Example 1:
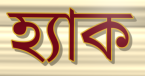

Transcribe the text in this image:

হ্যাক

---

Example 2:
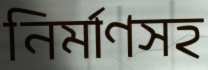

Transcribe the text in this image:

নির্মাণসহ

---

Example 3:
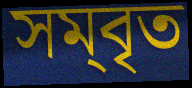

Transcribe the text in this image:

সম্‌বৃত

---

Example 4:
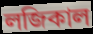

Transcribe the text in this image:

লজিকাল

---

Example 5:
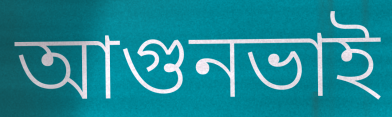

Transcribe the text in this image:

আগুনভাই